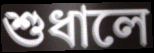
শুধালে